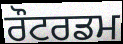
ਰੌਟਰਡਮ